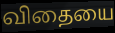
விதையை